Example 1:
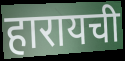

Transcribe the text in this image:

हारायची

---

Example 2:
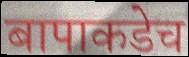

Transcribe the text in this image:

बापाकडेच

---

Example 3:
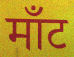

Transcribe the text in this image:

माँट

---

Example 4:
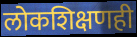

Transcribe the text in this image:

लोकशिक्षणही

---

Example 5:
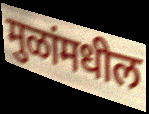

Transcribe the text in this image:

मुळांमधील